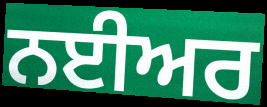
ਨਈਅਰ